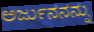
ಅರ್ಜುನನನ್ನು